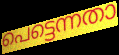
പെട്ടെന്നതാ